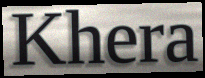
Khera